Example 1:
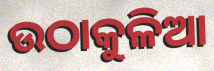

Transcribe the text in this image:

ଉଠାକୁଳିଆ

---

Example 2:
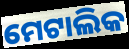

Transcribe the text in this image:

ମେଟାଲିକ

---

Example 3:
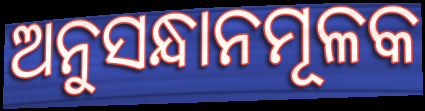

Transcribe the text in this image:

ଅନୁସନ୍ଧାନମୂଳକ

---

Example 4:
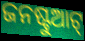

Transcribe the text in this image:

ଜନଷ୍ଟୁଆଟ୍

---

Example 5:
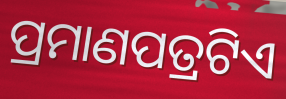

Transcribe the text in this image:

ପ୍ରମାଣପତ୍ରଟିଏ